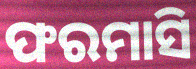
ଫରମାସି